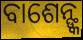
ବାଶେନ୍ଙ୍କ